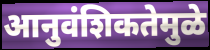
आनुवंशिकतेमुळे